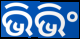
ଭିଭିଂ